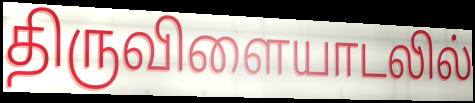
திருவிளையாடலில்